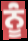
ਨੂਂੰ